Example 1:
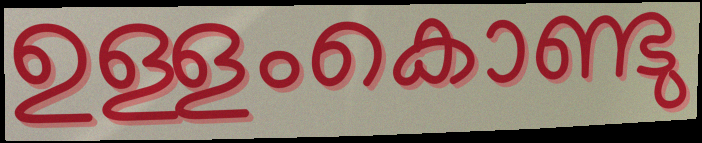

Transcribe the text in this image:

ഉള്ളംകൊണ്ടു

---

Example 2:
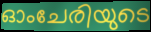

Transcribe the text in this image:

ഓംചേരിയുടെ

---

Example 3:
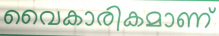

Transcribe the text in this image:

വൈകാരികമാണ്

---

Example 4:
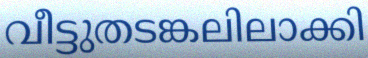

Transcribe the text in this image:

വീട്ടുതടങ്കലിലാക്കി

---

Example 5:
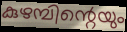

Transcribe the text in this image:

കുഴമ്പിന്റെയും